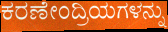
ಕರಣೇಂದ್ರಿಯಗಳನ್ನು